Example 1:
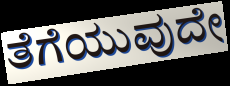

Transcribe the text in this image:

ತೆಗೆಯುವುದೇ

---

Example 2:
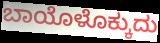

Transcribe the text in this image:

ಬಾಯೊಳೊಕ್ಕುದು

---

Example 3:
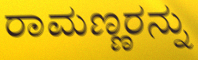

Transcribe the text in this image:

ರಾಮಣ್ಣರನ್ನು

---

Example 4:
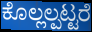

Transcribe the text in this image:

ಕೊಲ್ಲಲ್ಪಟ್ಟರೆ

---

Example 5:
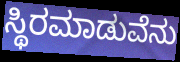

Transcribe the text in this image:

ಸ್ಥಿರಮಾಡುವೆನು